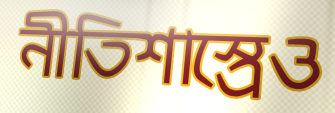
নীতিশাস্ত্রেও